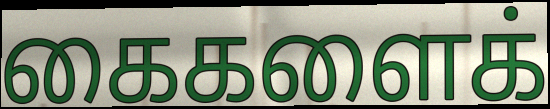
கைகளைக்